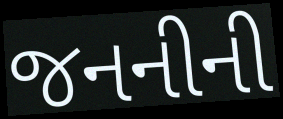
જનનીની